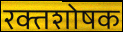
रक्तशोषक